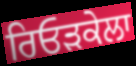
ਰਿਓੜਕੇਲਾ